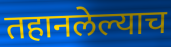
तहानलेल्याच